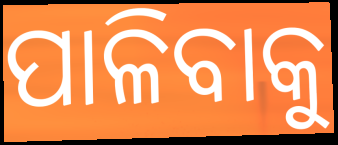
ପାଳିବାକୁ